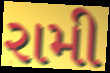
રામી